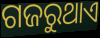
ଗଜରୁଥାଏ